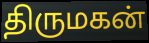
திருமகன்